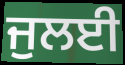
ਜੁਲਈ